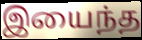
இயைந்த